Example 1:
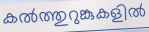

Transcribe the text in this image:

കൽത്തുറുങ്കുകളിൽ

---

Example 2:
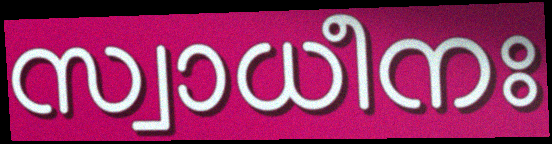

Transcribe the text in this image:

സ്വാധീനഃ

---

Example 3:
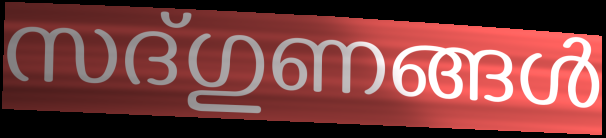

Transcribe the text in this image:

സദ്ഗുണങ്ങൾ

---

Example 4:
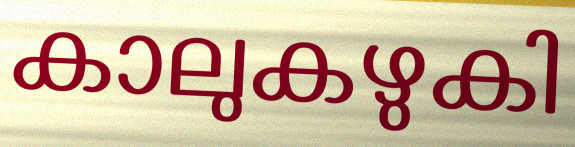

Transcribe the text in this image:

കാലുകഴുകി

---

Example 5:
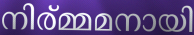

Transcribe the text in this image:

നിര്മ്മമനായി